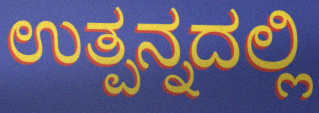
ಉತ್ಪನ್ನದಲ್ಲಿ